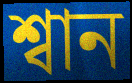
শ্বান